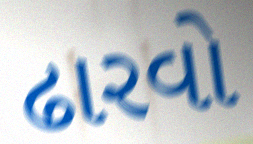
ઢારવો